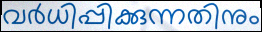
വർധിപ്പിക്കുന്നതിനും